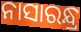
ନାସାରନ୍ଧ୍ର